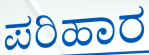
ಪರಿಹಾರ